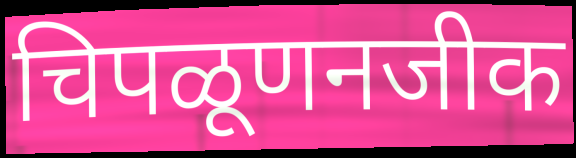
चिपळूणनजीक